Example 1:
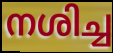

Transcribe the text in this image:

നശിച്ച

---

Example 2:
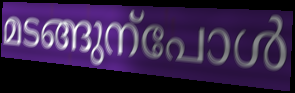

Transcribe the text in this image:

മടങ്ങുന്പോൾ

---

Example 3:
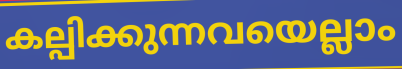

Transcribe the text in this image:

കല്പിക്കുന്നവയെല്ലാം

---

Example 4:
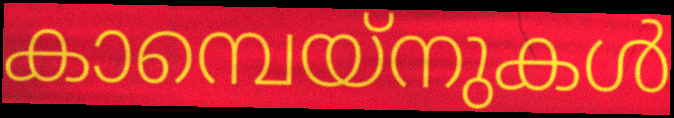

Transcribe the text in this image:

കാമ്പെയ്നുകൾ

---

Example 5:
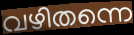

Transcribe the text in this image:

വഴിതന്നെ